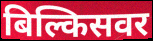
बिल्किसवर